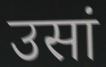
उसां